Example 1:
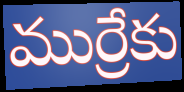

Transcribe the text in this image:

ముర్రేకు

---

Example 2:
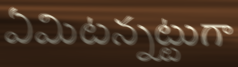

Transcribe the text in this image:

ఏమిటన్నట్టుగా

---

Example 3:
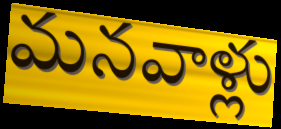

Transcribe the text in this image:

మనవాళ్లు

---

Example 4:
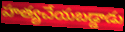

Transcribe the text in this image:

హత్యచేయబడ్డాడు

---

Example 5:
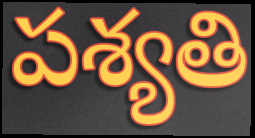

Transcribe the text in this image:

పశ్యతి